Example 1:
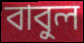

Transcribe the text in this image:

বাবুল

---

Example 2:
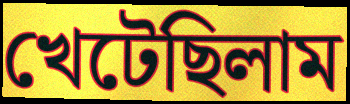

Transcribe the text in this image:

খেটেছিলাম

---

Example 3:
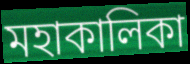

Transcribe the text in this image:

মহাকালিকা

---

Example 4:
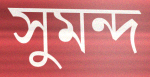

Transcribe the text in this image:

সুমন্দ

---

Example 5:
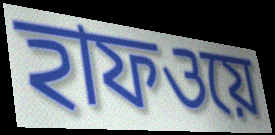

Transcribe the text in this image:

হাফওয়ে